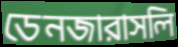
ডেনজারাসলি